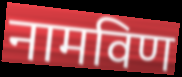
नामविण